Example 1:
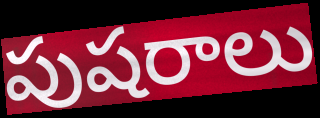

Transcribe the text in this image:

పుషరాలు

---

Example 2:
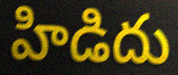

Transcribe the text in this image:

హిడిదు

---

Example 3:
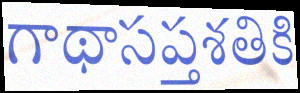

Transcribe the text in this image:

గాథాసప్తశతికి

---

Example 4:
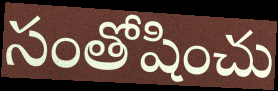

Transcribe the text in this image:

సంతోషించు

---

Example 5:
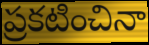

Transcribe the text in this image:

ప్రకటించినా